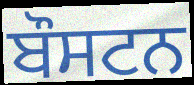
ਬੌਸਟਨ